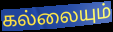
கல்லையும்